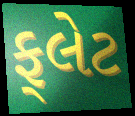
ફ્‌લેટ